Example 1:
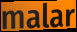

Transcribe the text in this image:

malar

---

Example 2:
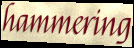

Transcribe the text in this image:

hammering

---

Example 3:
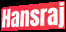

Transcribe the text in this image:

Hansraj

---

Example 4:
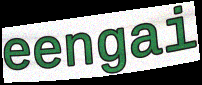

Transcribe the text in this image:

eengai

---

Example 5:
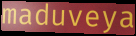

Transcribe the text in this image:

maduveya